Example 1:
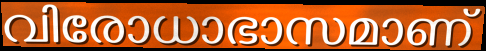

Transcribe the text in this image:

വിരോധാഭാസമാണ്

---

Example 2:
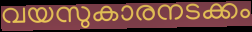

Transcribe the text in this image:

വയസുകാരനടക്കം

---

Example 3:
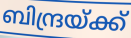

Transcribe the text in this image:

ബിന്ദ്രയ്ക്ക്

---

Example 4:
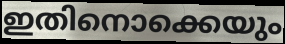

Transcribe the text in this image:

ഇതിനൊക്കെയും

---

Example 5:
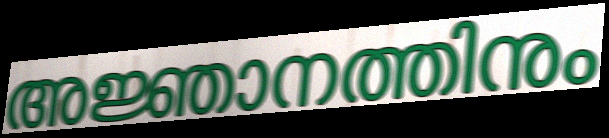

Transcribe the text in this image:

അജ്ഞാനത്തിനും